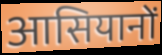
आसियानों